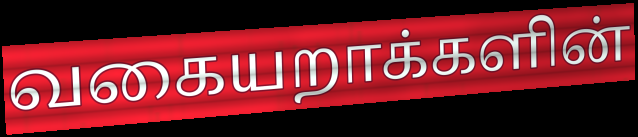
வகையறாக்களின்